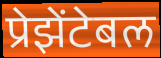
प्रेझेंटेबल